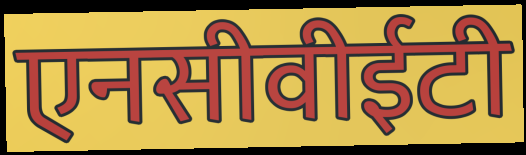
एनसीवीईटी